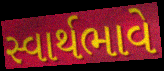
સ્વાર્થભાવે